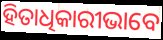
ହିତାଧିକାରୀଭାବେ